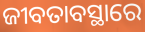
ଜୀବତାବସ୍ଥାରେ